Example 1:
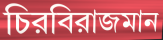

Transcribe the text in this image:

চিরবিরাজমান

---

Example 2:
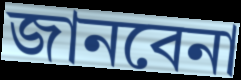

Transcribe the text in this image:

জানবেনা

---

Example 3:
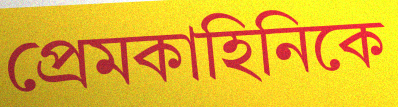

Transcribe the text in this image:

প্রেমকাহিনিকে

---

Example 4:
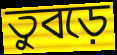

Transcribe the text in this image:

তুবড়ে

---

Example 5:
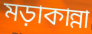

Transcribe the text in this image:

মড়াকান্না